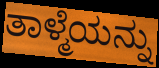
ತಾಳ್ಮೆಯನ್ನು